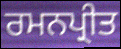
ਰਮਨਪ੍ਰੀਤ